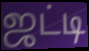
ஜட்டி